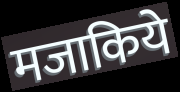
मजाकिये